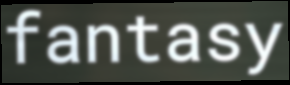
fantasy